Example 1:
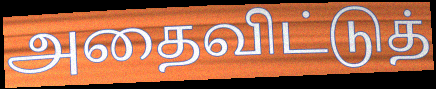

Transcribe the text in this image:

அதைவிட்டுத்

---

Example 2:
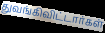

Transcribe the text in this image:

துவங்கிவிட்டார்கள்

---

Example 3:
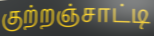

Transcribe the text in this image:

குற்றஞ்சாட்டி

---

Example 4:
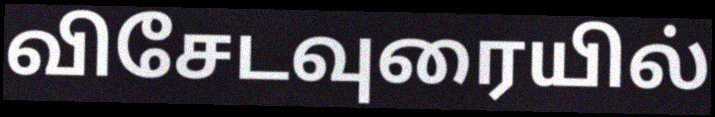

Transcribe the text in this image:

விசேடவுரையில்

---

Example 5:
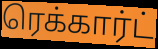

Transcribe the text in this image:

ரெக்கார்ட்